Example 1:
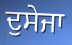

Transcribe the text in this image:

ਦੁਸੇਜਾ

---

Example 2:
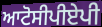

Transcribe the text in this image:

ਆਟੋਸੀਪੀਏਪੀ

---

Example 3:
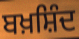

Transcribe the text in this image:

ਬਖ਼ਸ਼ਿੰਦ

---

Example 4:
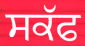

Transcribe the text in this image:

ਸਕੱਫ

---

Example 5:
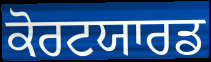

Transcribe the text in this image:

ਕੋਰਟਯਾਰਡ